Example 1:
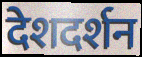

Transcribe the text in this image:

देशदर्शन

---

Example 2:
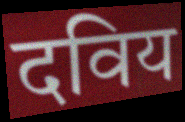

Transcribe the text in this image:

दविय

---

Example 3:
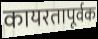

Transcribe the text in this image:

कायरतापूर्वक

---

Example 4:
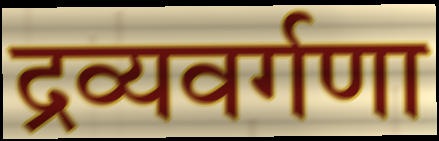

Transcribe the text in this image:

द्रव्यवर्गणा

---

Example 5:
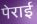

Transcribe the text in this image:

पेराई